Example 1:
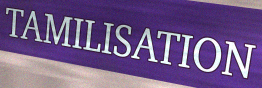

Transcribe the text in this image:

TAMILISATION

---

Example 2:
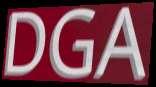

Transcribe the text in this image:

DGA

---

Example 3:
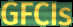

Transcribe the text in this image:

GFCIs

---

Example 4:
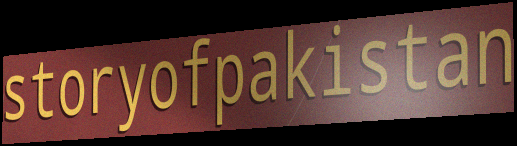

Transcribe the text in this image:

storyofpakistan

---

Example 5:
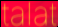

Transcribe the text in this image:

talat